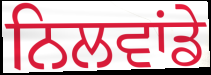
ਨਿਲਵਾਂਡੇ